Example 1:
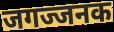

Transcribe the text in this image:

जगज्जनक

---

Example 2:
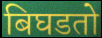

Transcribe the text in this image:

बिघडतो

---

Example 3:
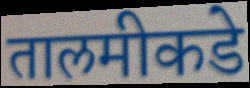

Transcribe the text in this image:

तालमीकडे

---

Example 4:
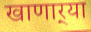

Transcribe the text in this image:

खाणार्या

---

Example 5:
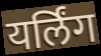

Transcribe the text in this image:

यर्लिंग